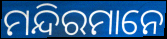
ମନ୍ଦିରମାନେ